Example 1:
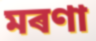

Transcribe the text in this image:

মৰণা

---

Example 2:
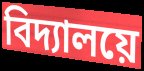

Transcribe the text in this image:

বিদ্যালয়ে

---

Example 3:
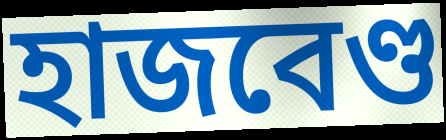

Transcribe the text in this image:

হাজবেণ্ড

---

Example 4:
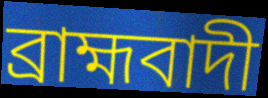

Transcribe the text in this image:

ব্ৰাহ্মবাদী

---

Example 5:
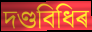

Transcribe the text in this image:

দণ্ডবিধিৰ